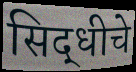
सिद्धीचे